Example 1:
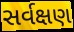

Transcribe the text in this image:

સર્વક્ષણ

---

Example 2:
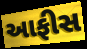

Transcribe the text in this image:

આફીસ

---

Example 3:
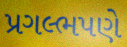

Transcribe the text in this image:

પ્રગલ્ભપણે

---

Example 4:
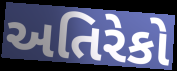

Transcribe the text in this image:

અતિરેકો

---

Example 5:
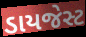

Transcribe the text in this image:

ડાયજેસ્ટ